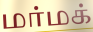
மர்மக்